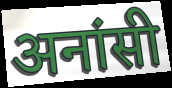
अनांसी